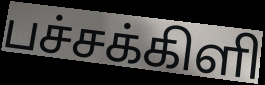
பச்சக்கிளி